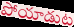
పోయాడుట